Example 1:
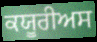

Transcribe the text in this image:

ਕਯੂਰੀਅਸ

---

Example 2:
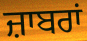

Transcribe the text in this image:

ਜ਼ਾਬਰਾਂ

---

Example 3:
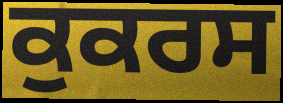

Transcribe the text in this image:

ਕੁਕਰਸ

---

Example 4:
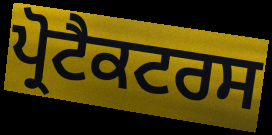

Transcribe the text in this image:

ਪ੍ਰੋਟੈਕਟਰਸ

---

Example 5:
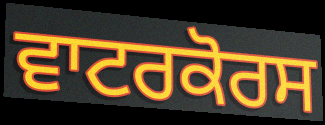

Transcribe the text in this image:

ਵਾਟਰਕੋਰਸ